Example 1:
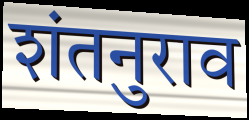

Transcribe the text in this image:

शंतनुराव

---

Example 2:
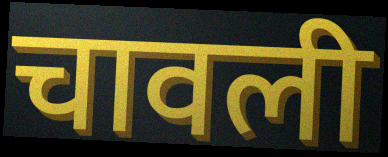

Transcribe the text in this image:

चावली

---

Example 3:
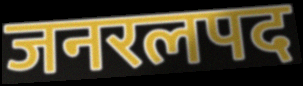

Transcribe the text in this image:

जनरलपद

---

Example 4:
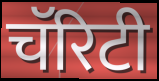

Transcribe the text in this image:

चॅरिटी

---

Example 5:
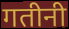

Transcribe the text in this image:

गतीनी